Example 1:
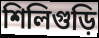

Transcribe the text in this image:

শিলিগুড়ি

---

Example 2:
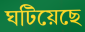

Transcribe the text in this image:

ঘটিয়েছে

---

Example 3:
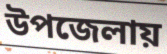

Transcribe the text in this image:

উপজেলায়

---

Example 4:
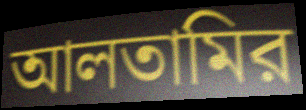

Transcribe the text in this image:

আলতামির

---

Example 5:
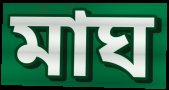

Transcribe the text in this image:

মাঘ